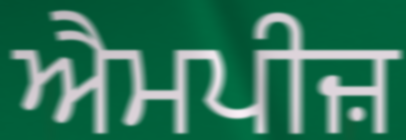
ਐਮਪੀਜ਼